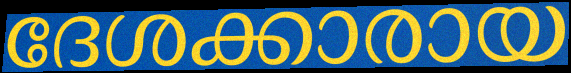
ദേശക്കാരായ